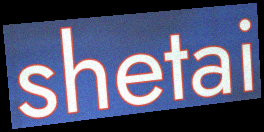
shetai